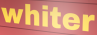
whiter